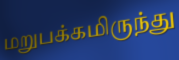
மறுபக்கமிருந்து